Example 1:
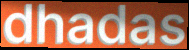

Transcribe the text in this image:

dhadas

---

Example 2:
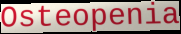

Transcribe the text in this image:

Osteopenia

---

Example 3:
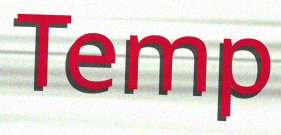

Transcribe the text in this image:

Temp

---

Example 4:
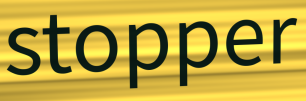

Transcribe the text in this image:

stopper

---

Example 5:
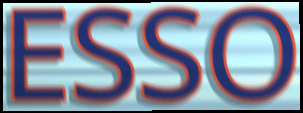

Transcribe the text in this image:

ESSO